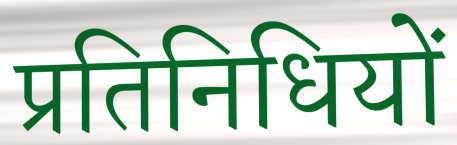
प्रतिनिधियों